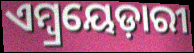
ଏମ୍ୱ୍ରୟେଡ଼ାରୀ